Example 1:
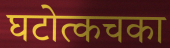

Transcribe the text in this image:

घटोत्कचका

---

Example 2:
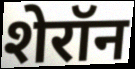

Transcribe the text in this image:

शेरॉन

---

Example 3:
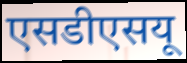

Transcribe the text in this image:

एसडीएसयू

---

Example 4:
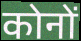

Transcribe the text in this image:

कोनों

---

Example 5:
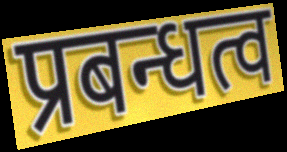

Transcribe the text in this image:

प्रबन्धत्व